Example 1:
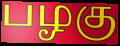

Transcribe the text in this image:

பழகு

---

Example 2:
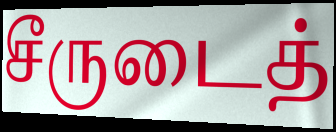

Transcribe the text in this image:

சீருடைத்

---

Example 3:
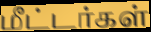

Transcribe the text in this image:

மீட்டர்கள்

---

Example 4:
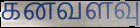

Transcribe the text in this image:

கனவளவு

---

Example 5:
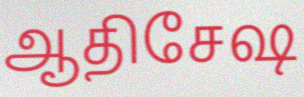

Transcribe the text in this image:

ஆதிசேஷ